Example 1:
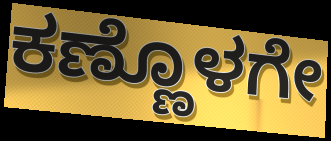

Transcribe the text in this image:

ಕಣ್ಣೊಳಗೇ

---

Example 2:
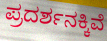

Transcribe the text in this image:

ಪ್ರದರ್ಶನಕ್ಕಿವೆ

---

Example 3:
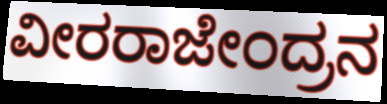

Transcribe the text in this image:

ವೀರರಾಜೇಂದ್ರನ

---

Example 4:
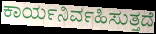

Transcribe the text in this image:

ಕಾರ್ಯನಿರ್ವಹಿಸುತ್ತದೆ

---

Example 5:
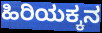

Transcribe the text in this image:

ಹಿರಿಯಕ್ಕನ